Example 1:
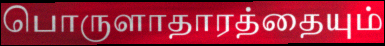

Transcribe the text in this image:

பொருளாதாரத்தையும்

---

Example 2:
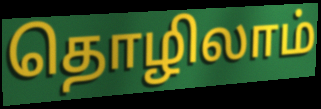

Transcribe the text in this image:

தொழிலாம்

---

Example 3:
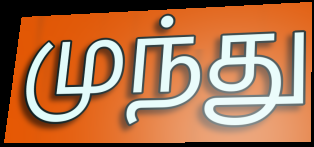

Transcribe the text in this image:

முந்து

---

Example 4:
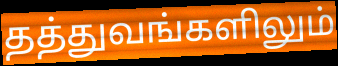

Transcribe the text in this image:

தத்துவங்களிலும்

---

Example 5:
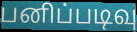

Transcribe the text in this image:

பனிப்படிவு